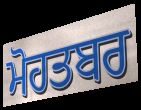
ਮੋਹਤਬਰ